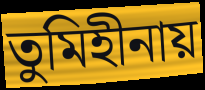
তুমিহীনায়